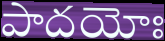
పాదయోః